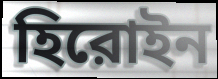
হিরোইন